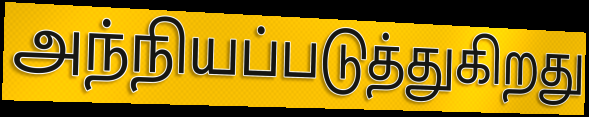
அந்நியப்படுத்துகிறது